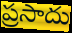
ప్రసాదు